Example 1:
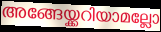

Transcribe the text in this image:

അങ്ങേയ്ക്കറിയാമല്ലോ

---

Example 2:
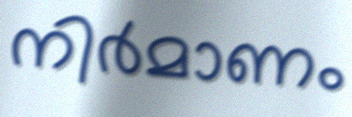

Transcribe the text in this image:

നിർമാണം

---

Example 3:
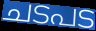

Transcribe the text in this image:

ചടപട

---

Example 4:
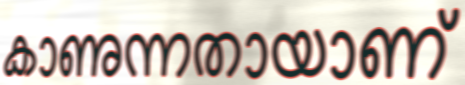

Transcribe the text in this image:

കാണുന്നതായാണ്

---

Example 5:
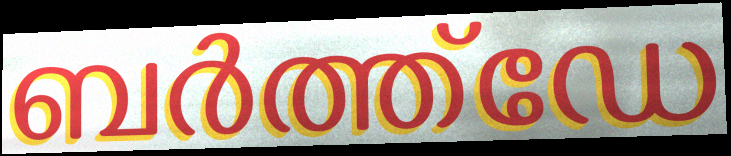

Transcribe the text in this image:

ബർത്ത്ഡേ